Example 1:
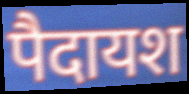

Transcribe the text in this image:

पैदायश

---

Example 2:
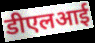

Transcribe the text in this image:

डीएलआई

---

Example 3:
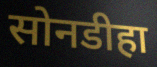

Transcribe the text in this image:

सोनडीहा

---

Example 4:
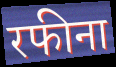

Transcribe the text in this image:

रफीना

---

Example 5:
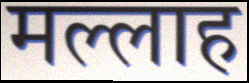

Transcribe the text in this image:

मल्‍लाह